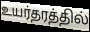
உயர்தரத்தில்